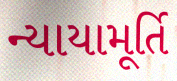
ન્યાયામૂર્તિ